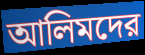
আলিমদের